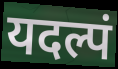
यदल्पं